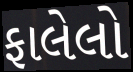
ફાલેલો